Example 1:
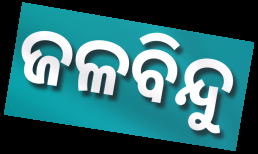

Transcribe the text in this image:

ଜଳବିନ୍ଦୁ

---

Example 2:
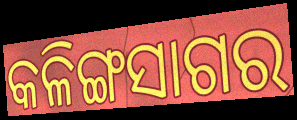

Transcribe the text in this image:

କଳିଙ୍ଗସାଗର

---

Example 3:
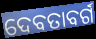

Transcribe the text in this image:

ଦେବତାବର୍ଗ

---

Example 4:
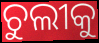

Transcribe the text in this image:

ଚୁଲୀକୁ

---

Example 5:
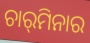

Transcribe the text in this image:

ଚାର୍‌ମିନାର